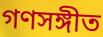
গণসঙ্গীত